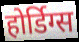
होर्डिग्स